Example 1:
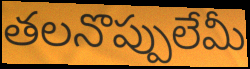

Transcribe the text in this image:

తలనొప్పులేమీ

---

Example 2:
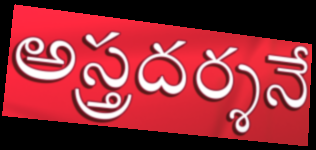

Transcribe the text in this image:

అస్త్రదర్శనే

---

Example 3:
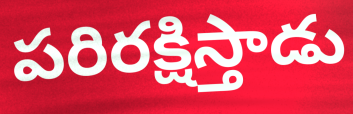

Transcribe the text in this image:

పరిరక్షిస్తాడు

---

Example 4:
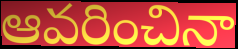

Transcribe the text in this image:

ఆవరించినా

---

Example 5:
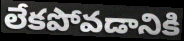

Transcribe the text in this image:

లేకపోవడానికి